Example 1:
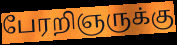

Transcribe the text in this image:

பேரறிஞருக்கு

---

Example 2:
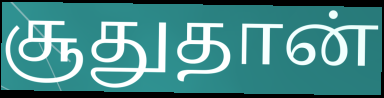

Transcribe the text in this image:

சூதுதான்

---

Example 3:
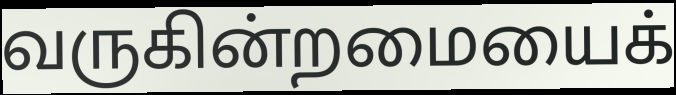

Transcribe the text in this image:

வருகின்றமையைக்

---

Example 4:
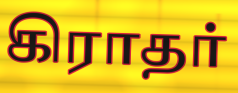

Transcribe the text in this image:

கிராதர்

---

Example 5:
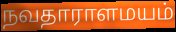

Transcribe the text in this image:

நவதாராளமயம்